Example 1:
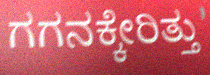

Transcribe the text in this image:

ಗಗನಕ್ಕೇರಿತ್ತು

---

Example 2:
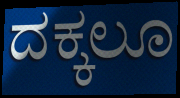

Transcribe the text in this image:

ದಕ್ಕಲೂ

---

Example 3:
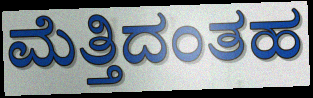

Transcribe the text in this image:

ಮೆತ್ತಿದಂತಹ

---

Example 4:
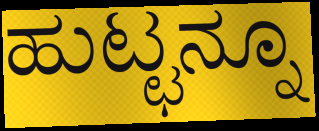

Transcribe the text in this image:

ಹುಟ್ಟನ್ನೂ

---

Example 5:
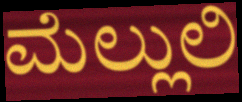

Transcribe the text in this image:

ಮೆಲ್ಲುಲಿ